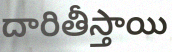
దారితీస్తాయి